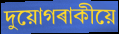
দুয়োগৰাকীয়ে